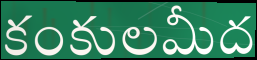
కంకులమీద